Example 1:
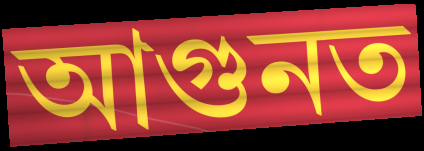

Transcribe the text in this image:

আগুনত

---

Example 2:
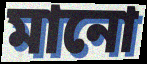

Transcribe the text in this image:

মানো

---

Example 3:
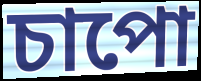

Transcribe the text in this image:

চাপো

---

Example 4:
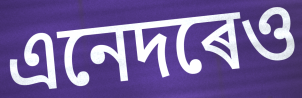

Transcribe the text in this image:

এনেদৰেও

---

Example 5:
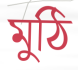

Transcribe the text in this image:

মুঠি